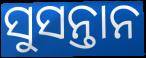
ସୁସନ୍ତାନ